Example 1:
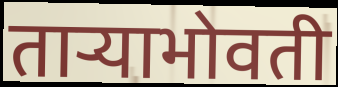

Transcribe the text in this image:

ताऱ्याभोवती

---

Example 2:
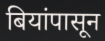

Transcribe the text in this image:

बियांपासून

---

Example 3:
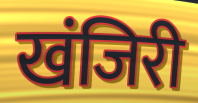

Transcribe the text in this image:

खंजिरी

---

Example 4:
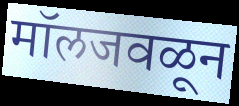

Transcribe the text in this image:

मॉलजवळून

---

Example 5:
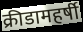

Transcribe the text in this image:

क्रीडामहर्षी